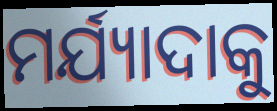
ମର୍ଯ୍ୟାଦାକୁ